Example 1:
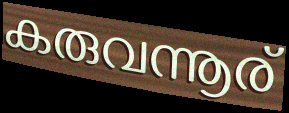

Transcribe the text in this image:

കരുവന്നൂര്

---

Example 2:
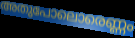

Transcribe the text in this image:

അതുപോലൊരെണ്ണം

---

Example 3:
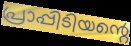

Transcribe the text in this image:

പ്രാപ്പിടിയന്റെ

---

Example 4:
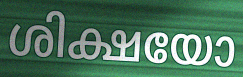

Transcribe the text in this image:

ശിക്ഷയോ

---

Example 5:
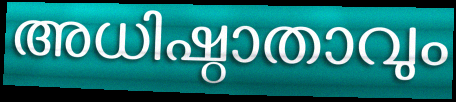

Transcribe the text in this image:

അധിഷ്ഠാതാവും